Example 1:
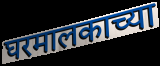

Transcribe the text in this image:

घरमालकाच्या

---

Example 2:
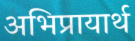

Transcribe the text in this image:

अभिप्रायार्थ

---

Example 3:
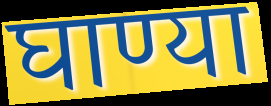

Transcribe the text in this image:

घाण्या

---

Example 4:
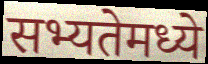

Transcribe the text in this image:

सभ्यतेमध्ये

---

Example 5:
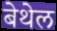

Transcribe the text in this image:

बेथेल